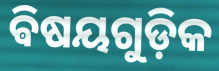
ଵିଷୟଗୁଡ଼ିକ